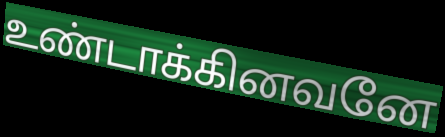
உண்டாக்கினவனே